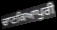
ਚਾਣਕਿਆਪੁਰੀ